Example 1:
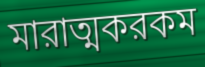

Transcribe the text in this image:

মারাত্মকরকম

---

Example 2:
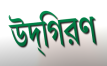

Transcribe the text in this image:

উদ্‌গিরণ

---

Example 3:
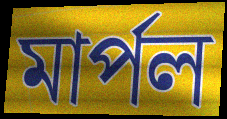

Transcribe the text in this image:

মার্পল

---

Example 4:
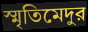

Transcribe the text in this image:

স্মৃতিমেদুর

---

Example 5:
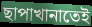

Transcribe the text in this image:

ছাপাখানাতেই